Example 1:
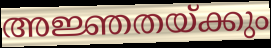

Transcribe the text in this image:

അജ്ഞതയ്ക്കും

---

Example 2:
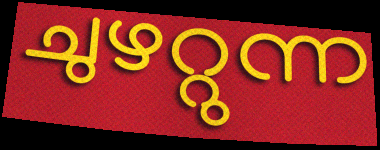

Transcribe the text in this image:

ചുഴറ്റുന്ന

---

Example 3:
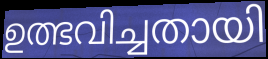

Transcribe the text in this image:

ഉത്ഭവിച്ചതായി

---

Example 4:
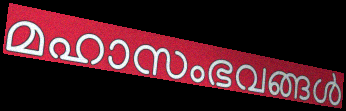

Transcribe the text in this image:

മഹാസംഭവങ്ങൾ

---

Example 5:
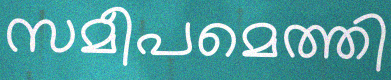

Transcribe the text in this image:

സമീപമെത്തി